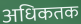
अधिकतक